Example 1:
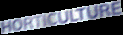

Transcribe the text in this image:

HORTICULTURE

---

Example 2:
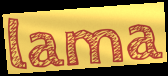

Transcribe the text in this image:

lama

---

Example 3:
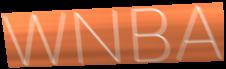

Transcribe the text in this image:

WNBA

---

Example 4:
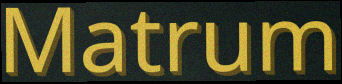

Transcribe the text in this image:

Matrum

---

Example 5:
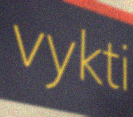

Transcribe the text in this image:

vykti